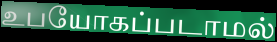
உபயோகப்படாமல்